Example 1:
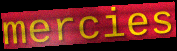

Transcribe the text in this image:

mercies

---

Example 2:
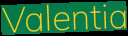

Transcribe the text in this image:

Valentia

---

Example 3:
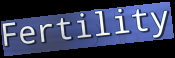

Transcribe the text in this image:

Fertility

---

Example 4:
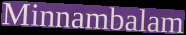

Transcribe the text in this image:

Minnambalam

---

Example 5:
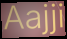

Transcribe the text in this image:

Aajji